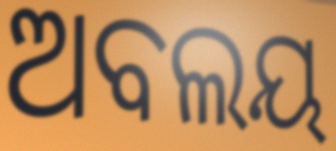
ଅବଲୟ